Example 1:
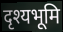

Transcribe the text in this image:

दृश्यभूमि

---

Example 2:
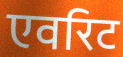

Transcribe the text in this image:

एवरिट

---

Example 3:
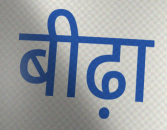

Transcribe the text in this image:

बीढ़ा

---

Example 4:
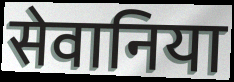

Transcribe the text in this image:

सेवानिया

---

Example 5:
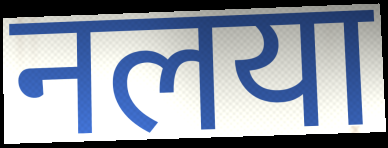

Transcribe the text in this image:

नलया